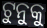
ଟୁନୁକୁ